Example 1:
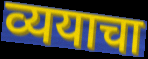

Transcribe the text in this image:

व्ययाचा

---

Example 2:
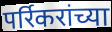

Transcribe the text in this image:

पर्रिकरांच्या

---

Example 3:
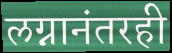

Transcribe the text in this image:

लग्नानंतरही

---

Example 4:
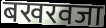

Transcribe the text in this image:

बखरवजा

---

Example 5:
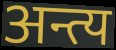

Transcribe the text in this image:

अन्त्य